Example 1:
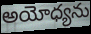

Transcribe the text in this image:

అయోధ్యను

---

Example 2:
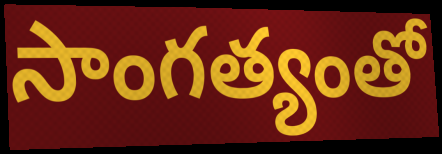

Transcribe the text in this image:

సాంగత్యంతో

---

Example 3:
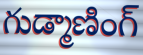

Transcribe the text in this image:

గుడ్మాణింగ్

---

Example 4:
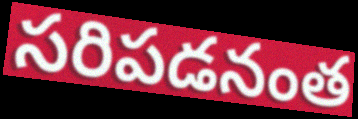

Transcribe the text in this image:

సరిపడనంత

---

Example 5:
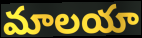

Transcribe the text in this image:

మాలయా